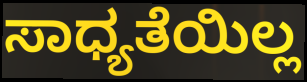
ಸಾಧ್ಯತೆಯಿಲ್ಲ